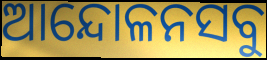
ଆନ୍ଦୋଳନସବୁ